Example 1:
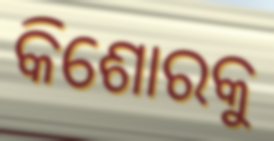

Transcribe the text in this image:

କିଶୋରକୁ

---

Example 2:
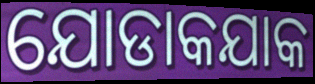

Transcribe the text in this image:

ଯୋଡାକଯାକ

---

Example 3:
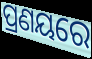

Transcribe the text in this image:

ପ୍ରଣୟରେ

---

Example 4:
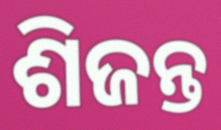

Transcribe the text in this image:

ଶିଜନ୍ତ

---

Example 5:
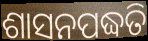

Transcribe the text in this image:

ଶାସନପଦ୍ଧତି